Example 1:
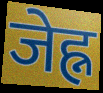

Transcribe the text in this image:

जेह्न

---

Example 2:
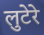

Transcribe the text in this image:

लुटेरे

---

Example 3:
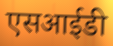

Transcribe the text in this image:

एसआईडी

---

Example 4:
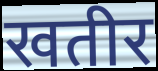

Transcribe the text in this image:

खतीर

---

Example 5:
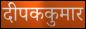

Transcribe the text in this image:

दीपककुमार